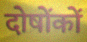
दोषोंकों